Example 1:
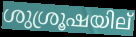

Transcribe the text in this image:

ശുശ്രൂഷയില്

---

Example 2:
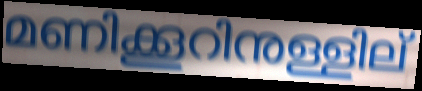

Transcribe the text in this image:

മണിക്കൂറിനുള്ളില്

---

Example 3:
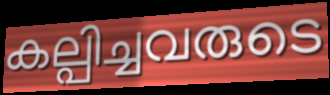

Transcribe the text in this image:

കല്പിച്ചവരുടെ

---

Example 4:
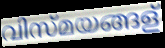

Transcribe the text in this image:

വിസ്മയങ്ങള്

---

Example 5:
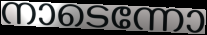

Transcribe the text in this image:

നാടെന്നോ